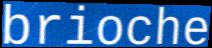
brioche